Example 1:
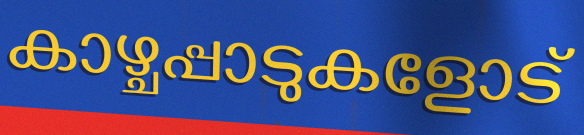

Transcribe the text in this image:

കാഴ്ചപ്പാടുകളോട്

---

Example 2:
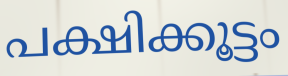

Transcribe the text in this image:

പക്ഷിക്കൂട്ടം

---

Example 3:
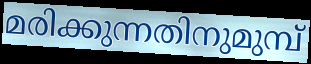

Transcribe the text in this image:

മരിക്കുന്നതിനുമുമ്പ്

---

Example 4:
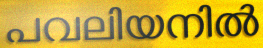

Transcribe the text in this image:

പവലിയനിൽ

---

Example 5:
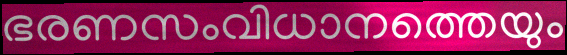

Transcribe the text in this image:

ഭരണസംവിധാനത്തെയും